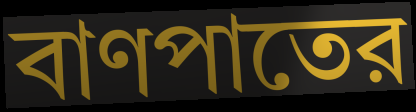
বাণপাতের